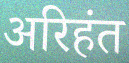
अरिहंत